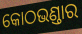
କୋଠଭଣ୍ଡାର